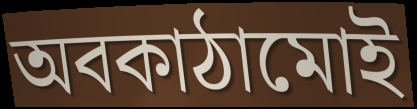
অবকাঠামোই